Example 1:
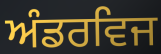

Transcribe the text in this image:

ਅੰਡਰਵਿਜ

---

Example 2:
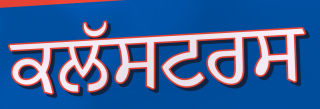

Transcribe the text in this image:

ਕਲੱਸਟਰਸ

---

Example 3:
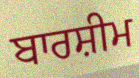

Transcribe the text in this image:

ਬਾਰਸ਼ੀਮ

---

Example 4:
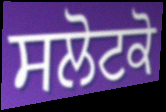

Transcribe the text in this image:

ਸਲੋਟਕੋ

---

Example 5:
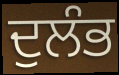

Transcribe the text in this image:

ਦੁਲੰਭ